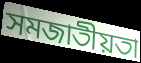
সমজাতীয়তা